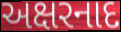
અક્ષરનાદ